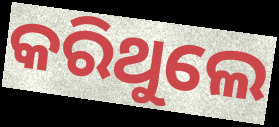
କରିଥୁଲେ